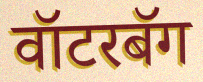
वॉटरबॅग